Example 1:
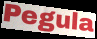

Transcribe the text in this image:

Pegula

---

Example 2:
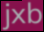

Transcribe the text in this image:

jxb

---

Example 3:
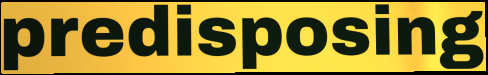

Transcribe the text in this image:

predisposing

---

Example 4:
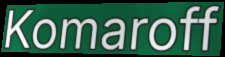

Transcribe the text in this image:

Komaroff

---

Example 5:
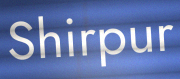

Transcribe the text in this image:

Shirpur